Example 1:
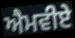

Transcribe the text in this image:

ਐਮਵੀਏ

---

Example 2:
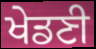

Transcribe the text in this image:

ਖੇਡਣੀ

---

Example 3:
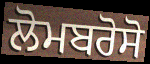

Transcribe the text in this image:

ਲੋਮਬਰੋਸੋ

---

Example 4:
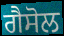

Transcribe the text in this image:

ਗੈਸੋਲ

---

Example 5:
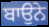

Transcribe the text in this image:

ਬਾਉਨੇ